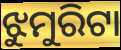
ଝୁମୁରିଟା